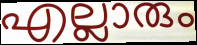
എല്ലാരും